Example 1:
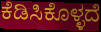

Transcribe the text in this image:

ಕೆಡಿಸಿಕೊಳ್ಳದೆ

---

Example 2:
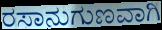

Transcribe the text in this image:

ರಸಾನುಗುಣವಾಗಿ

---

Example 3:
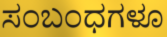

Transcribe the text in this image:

ಸಂಬಂಧಗಳೂ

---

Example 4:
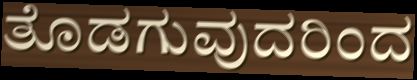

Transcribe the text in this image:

ತೊಡಗುವುದರಿಂದ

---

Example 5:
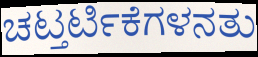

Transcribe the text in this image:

ಚಟ್ತರ್ಟಿಕೆಗಳನತು